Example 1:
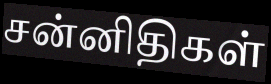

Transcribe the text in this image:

சன்னிதிகள்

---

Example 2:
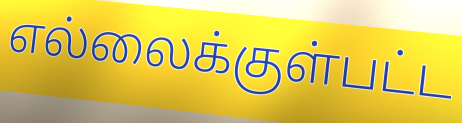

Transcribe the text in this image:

எல்லைக்குள்பட்ட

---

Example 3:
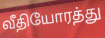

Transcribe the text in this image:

வீதியோரத்து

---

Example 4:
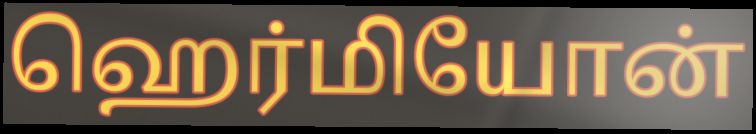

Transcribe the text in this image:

ஹெர்மியோன்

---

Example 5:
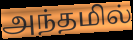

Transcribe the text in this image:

அந்தமில்